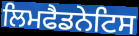
ਲਿਮਫੈਡਨੇਟਿਸ